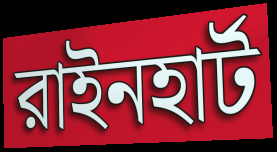
রাইনহার্ট